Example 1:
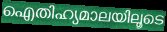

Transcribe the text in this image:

ഐതിഹ്യമാലയിലൂടെ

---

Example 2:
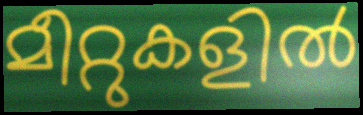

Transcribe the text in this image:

മീറ്റുകളിൽ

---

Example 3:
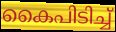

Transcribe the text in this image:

കൈപിടിച്ച്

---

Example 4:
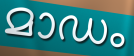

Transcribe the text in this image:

മാഡം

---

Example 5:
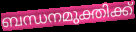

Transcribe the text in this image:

ബന്ധനമുക്തിക്ക്